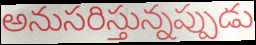
అనుసరిస్తున్నప్పుడు